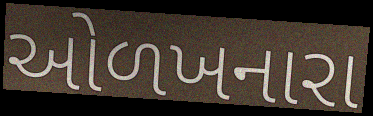
ઓળખનારા